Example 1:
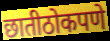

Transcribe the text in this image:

छातीठोकपणे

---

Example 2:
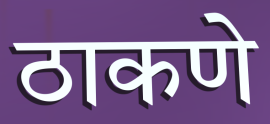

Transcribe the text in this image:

ठाकणे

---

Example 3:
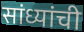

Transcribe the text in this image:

सांध्यांची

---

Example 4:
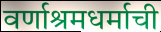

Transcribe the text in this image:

वर्णाश्रमधर्माची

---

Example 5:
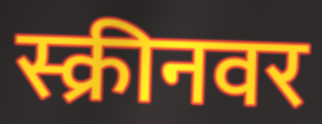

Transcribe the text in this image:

स्क्रीनवर